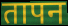
तापन